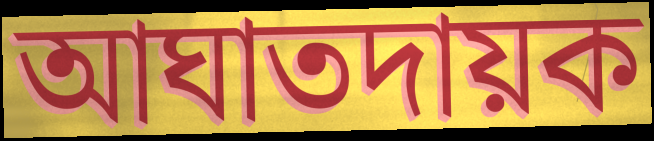
আঘাতদায়ক